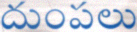
దుంపలు